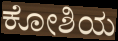
ಕೋಶಿಯ